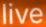
live